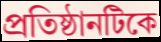
প্রতিষ্ঠানটিকে